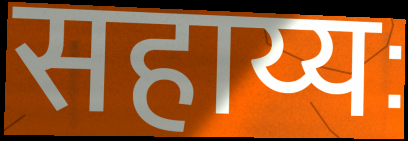
सहाय्यः